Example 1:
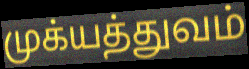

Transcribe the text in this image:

முக்யத்துவம்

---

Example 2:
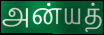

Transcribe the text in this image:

அன்யத்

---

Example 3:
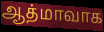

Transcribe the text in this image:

ஆத்மாவாக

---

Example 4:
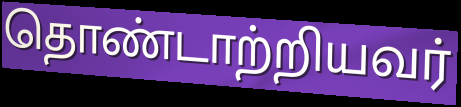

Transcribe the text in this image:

தொண்டாற்றியவர்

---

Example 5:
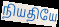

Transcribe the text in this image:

நியதியே